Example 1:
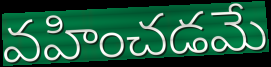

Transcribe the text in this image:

వహించడమే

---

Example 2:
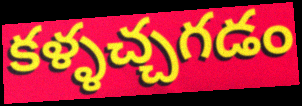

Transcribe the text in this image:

కళ్ళచ్చగడం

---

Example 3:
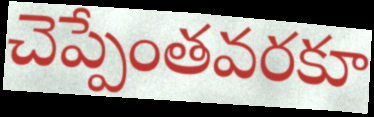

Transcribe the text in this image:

చెప్పేంతవరకూ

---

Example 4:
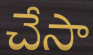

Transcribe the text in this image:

చేసా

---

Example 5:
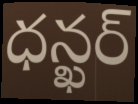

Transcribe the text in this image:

ధన్ఖర్